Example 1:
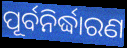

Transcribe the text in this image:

ପୂର୍ବନିର୍ଦ୍ଧାରଣ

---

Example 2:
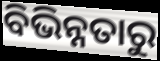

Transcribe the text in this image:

ବିଭିନ୍ନତାରୁ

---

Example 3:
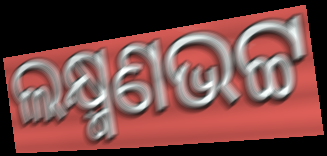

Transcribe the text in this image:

ଲକ୍ଷ୍ମଣଭଟ୍ଟ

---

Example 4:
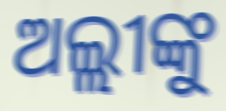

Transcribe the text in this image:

ଅଲ୍ଲୀଙ୍କୁ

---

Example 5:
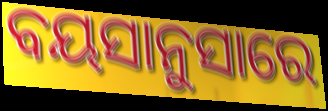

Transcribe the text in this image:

ବୟସାନୁସାରେ